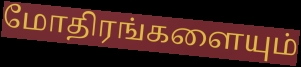
மோதிரங்களையும்